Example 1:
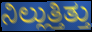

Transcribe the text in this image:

ನಿಲ್ಲುತ್ತಿತ್ತು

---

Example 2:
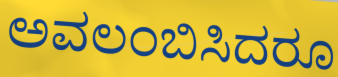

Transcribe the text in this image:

ಅವಲಂಬಿಸಿದರೂ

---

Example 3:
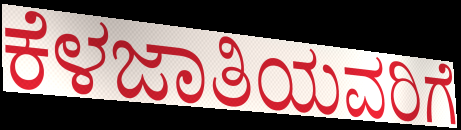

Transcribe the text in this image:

ಕೆಳಜಾತಿಯವರಿಗೆ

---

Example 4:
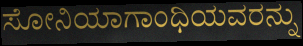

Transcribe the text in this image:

ಸೋನಿಯಾಗಾಂಧಿಯವರನ್ನು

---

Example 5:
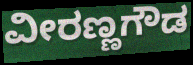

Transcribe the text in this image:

ವೀರಣ್ಣಗೌಡ